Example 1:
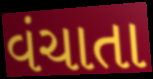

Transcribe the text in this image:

વંચાતા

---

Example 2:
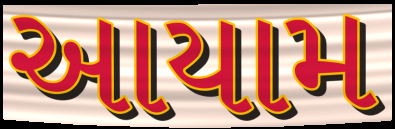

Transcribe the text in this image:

આયામ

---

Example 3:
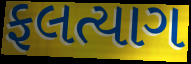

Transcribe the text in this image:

ફલત્યાગ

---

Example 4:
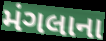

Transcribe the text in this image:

મંગલાના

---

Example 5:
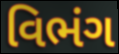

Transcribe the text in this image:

વિભંગ